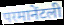
परमानेंटली